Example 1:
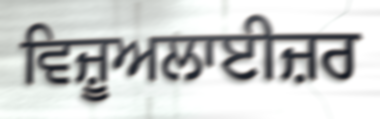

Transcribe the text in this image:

ਵਿਜ਼ੂਅਲਾਈਜ਼ਰ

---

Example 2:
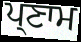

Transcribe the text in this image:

ਪ੍ਣਾਮ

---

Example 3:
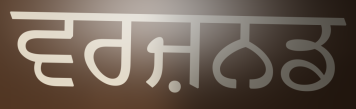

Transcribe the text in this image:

ਵਰਜ਼ਨਡ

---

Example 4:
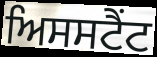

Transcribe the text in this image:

ਅਿਸਸਟੈਂਟ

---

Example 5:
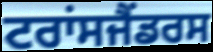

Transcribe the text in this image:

ਟਰਾਂਸਜੈਂਡਰਸ